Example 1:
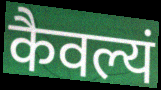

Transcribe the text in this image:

कैवल्यं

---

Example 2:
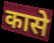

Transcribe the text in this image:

कासे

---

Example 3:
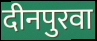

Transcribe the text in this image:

दीनपुरवा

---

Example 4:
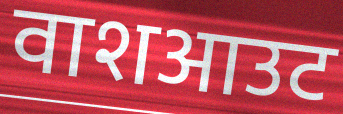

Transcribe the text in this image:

वाशआउट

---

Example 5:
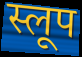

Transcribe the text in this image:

स्लूप